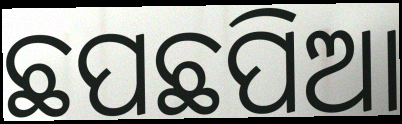
ଛପଛପିଆ